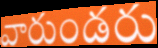
వారుండరు